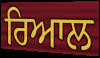
ਰਿਆਲ